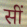
सीं